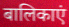
बालिकाएं